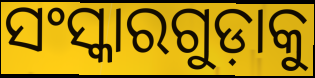
ସଂସ୍କାରଗୁଡ଼ାକୁ